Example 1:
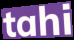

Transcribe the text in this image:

tahi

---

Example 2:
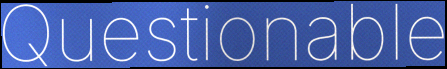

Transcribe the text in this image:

Questionable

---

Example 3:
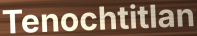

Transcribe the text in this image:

Tenochtitlan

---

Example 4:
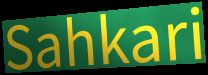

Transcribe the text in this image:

Sahkari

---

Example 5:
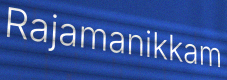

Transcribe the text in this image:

Rajamanikkam